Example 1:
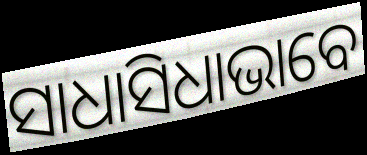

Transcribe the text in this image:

ସାଧାସିଧାଭାବେ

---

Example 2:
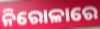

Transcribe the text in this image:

ନିରୋଳାରେ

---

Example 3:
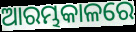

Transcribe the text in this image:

ଆରମ୍ଭକାଳରେ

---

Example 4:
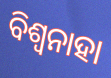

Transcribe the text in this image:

ବିଶ୍ଵନାହା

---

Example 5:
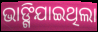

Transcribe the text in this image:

ଭାଙ୍ଗିଯାଇଥିଲା